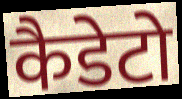
कैडेटो